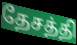
தேசத்தி